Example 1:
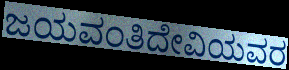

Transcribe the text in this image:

ಜಯವಂತಿದೇವಿಯವರ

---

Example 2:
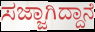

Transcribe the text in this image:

ಸಜ್ಜಾಗಿದ್ದಾನೆ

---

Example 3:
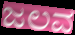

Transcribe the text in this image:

ಜಲವ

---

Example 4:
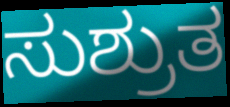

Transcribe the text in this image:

ಸುಶ್ರುತ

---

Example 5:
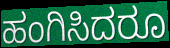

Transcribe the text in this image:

ಹಂಗಿಸಿದರೂ